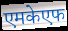
एमकेएफ